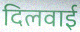
दिलवाई